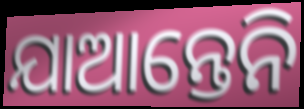
ଯାଆନ୍ତେନି